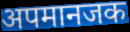
अपमानजक